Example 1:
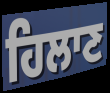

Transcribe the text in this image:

ਹਿਲਾਣ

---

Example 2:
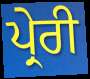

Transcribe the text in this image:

ਪ੍ਰੇਰੀ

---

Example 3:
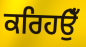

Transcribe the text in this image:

ਕਰਿਹਉਁ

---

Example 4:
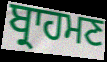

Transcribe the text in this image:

ਬ੍ਰਾਹਮਣ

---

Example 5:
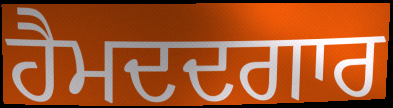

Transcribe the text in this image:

ਹੈਮਦਦਗਾਰ